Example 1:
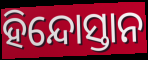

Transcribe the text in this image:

ହିନ୍ଦୋସ୍ତାନ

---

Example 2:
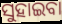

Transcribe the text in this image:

ସୁହାଇବା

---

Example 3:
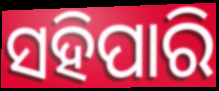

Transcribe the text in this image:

ସହିପାରି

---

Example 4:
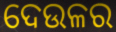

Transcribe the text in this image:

ଦେଉଳର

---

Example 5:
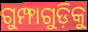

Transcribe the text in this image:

ଗୁମ୍ଫାଗୁଡ଼ିକୁ